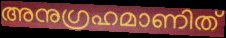
അനുഗ്രഹമാണിത്